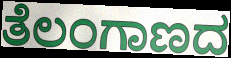
ತೆಲಂಗಾಣದ